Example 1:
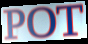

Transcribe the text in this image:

POT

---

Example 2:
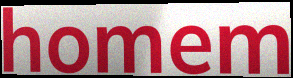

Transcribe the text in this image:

homem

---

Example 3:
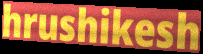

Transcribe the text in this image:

hrushikesh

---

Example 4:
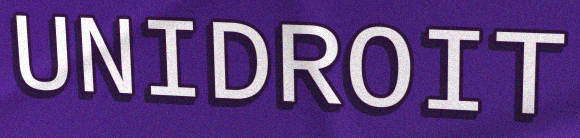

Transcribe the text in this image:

UNIDROIT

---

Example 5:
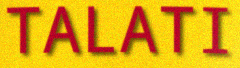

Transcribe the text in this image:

TALATI